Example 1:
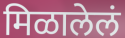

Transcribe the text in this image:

मिळालेलं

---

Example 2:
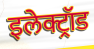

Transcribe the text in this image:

इलेक्ट्रॉड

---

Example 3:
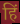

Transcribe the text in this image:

हिं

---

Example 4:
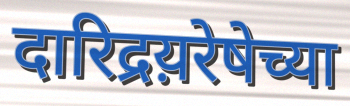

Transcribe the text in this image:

दारिद्रय़रेषेच्या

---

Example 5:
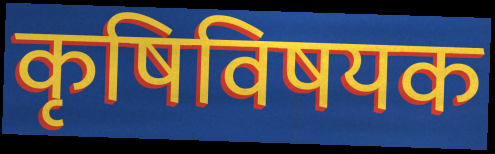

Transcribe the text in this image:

कृषिविषयक